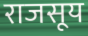
राजसूय